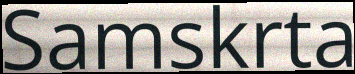
Samskrta